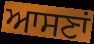
ਆਸਣਾਂ